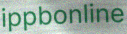
ippbonline